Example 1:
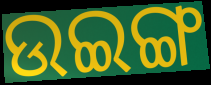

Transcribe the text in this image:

ଉଇଙ୍ଗ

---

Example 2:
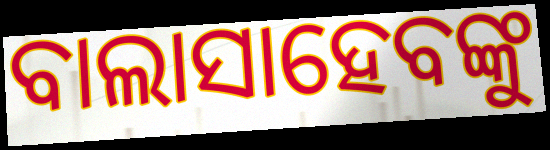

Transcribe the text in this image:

ବାଲାସାହେବଙ୍କୁ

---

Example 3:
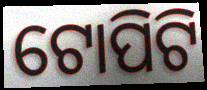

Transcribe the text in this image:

ଟୋପିଟି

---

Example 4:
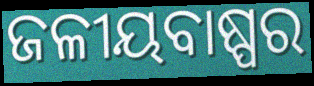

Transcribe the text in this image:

ଜଳୀୟବାଷ୍ପର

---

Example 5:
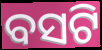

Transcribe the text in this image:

ବସଟି